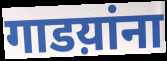
गाडय़ांना